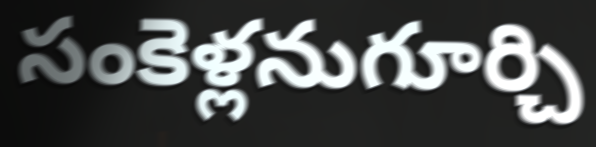
సంకెళ్లనుగూర్చి